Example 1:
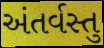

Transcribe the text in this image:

અંતર્વસ્તુ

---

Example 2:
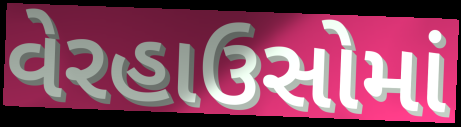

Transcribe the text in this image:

વેરહાઉસોમાં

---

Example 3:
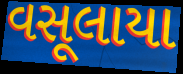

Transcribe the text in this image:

વસૂલાયા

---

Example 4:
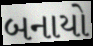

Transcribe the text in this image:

બનાયો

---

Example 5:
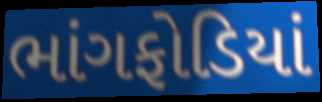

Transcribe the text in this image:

ભાંગફોડિયાં